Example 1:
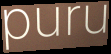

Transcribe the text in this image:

puru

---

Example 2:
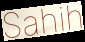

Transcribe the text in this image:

Sahih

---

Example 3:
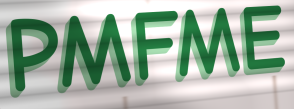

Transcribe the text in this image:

PMFME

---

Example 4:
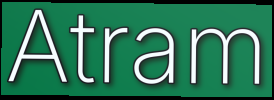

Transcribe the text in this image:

Atram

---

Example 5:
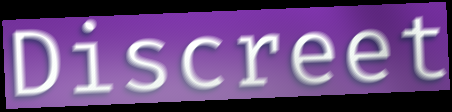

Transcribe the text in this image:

Discreet